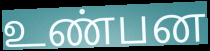
உண்பன